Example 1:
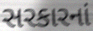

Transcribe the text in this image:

સરકારનાં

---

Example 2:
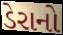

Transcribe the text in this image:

ડેરાનો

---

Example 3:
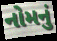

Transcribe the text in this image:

નોમનું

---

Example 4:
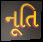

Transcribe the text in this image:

નૂતિ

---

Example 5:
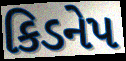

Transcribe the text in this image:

કિડનેપ